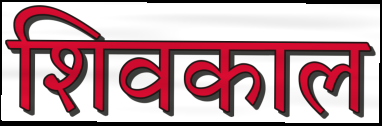
शिवकाल